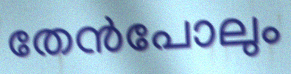
തേൻപോലും